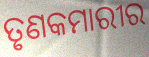
ତୃଣକମାରୀର